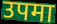
उपमा